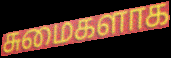
சுமைகளாக